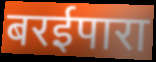
बरईपारा